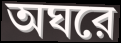
অঘরে